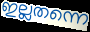
ഇല്ലതന്നെ